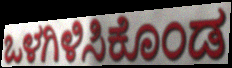
ಒಳಗಿಳಿಸಿಕೊಂಡ